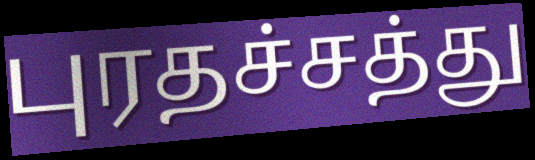
புரதச்சத்து